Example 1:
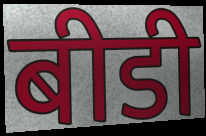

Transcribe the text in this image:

बीडी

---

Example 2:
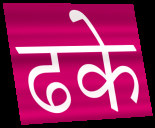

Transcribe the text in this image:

ढके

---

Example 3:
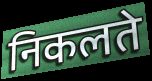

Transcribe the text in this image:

निकलते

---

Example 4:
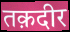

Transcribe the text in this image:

तक़दीर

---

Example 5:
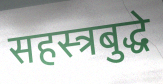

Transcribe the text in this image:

सहस्त्रबुद्धे